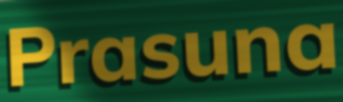
Prasuna